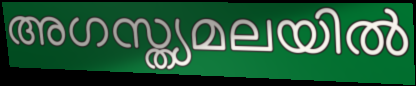
അഗസ്ത്യമലയിൽ